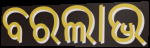
ବରଲାଭ